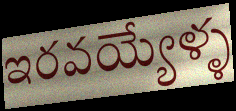
ఇరవయ్యేళ్ళ